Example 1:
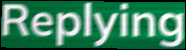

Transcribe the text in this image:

Replying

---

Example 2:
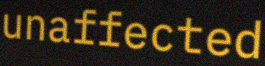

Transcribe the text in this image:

unaffected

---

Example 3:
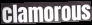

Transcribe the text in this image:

clamorous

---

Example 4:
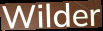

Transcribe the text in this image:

Wilder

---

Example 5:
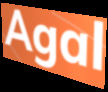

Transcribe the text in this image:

Agal